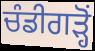
ਚੰਡੀਗੜ੍ਹੋਂ